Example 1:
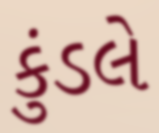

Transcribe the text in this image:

કુંડલે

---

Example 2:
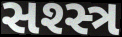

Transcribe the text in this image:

સશ્સ્ત્ર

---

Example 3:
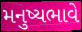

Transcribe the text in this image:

મનુષ્યભાવે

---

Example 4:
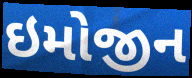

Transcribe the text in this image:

ઇમોજીન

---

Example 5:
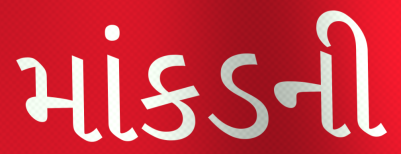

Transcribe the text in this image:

માંકડની